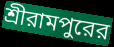
শ্রীরামপুরের